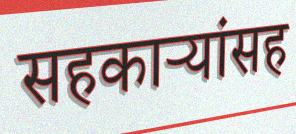
सहकाऱ्यांसह